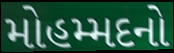
મોહમ્મદનો